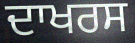
ਦਾਖਰਸ